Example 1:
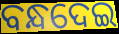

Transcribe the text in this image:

ବନ୍ଧଦେଇ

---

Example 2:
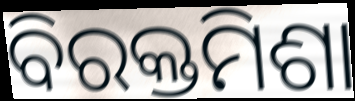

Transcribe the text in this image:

ବିରକ୍ତମିଶା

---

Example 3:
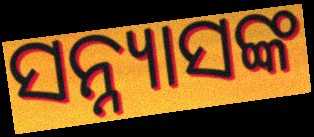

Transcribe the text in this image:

ସନ୍ନ୍ୟାସଙ୍କ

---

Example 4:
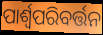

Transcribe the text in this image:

ପାର୍ଶ୍ଵପରିବର୍ତ୍ତନ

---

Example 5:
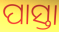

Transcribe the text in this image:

ପାସ୍ତା